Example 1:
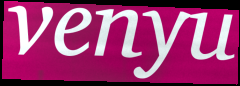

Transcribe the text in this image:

venyu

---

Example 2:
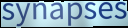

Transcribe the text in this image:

synapses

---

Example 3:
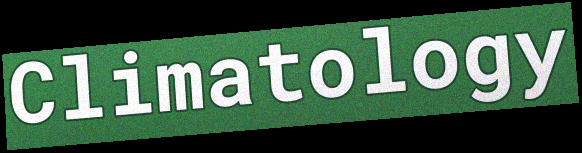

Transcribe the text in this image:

Climatology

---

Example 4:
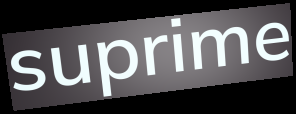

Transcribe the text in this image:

suprime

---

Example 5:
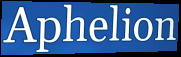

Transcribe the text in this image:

Aphelion